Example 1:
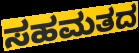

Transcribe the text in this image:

ಸಹಮತದ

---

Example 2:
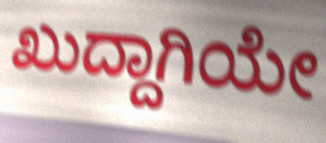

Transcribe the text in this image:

ಖುದ್ದಾಗಿಯೇ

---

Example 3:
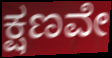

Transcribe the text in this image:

ಕ್ಷಣವೇ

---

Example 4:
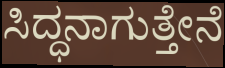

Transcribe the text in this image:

ಸಿದ್ಧನಾಗುತ್ತೇನೆ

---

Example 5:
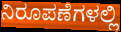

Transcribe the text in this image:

ನಿರೂಪಣೆಗಳಲ್ಲಿ